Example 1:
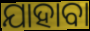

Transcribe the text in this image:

ଯାହାବା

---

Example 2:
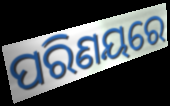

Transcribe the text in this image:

ପରିଣୟରେ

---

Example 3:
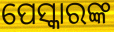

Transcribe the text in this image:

ପେସ୍କାରଙ୍କ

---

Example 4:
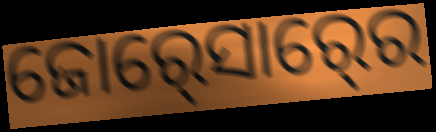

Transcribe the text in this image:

ଜୋର୍‍ସୋର୍‍ରେ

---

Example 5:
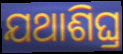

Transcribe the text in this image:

ଯଥାଶିଘ୍ର